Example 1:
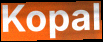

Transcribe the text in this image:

Kopal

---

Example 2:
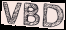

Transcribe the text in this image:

VBD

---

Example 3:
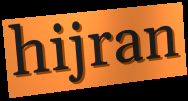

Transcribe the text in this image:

hijran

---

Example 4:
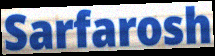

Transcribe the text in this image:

Sarfarosh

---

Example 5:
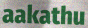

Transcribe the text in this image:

aakathu